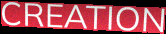
CREATION